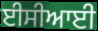
ਈਸੀਆਈ